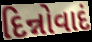
દિન્નોવાદં